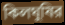
কিলঘুষির